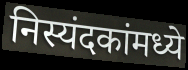
निस्यंदकांमध्ये